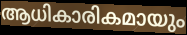
ആധികാരികമായും